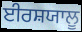
ਈਰਸ਼ਯਾਲੂ